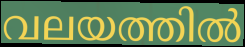
വലയത്തിൽ